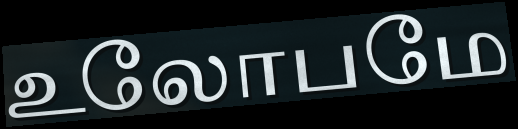
உலோபமே